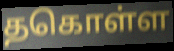
தகொள்ள